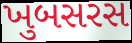
ખુબસરસ